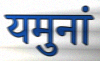
यमुनां